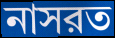
নাসরত